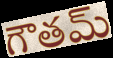
గౌతమ్